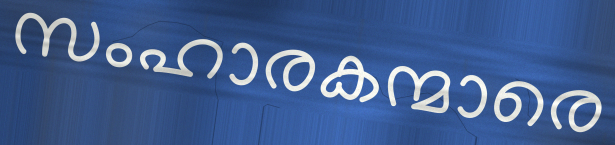
സംഹാരകന്മാരെ